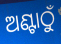
ଅଣ୍ଟାଠୁଁ